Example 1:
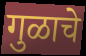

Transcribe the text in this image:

गुळाचे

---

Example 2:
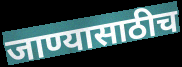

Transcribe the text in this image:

जाण्यासाठीच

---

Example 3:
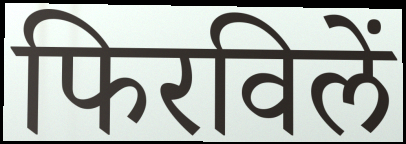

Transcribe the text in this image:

फिरविलें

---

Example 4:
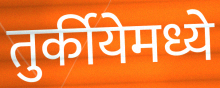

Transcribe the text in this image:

तुर्कीयेमध्ये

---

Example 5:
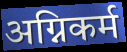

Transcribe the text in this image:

अग्निकर्म